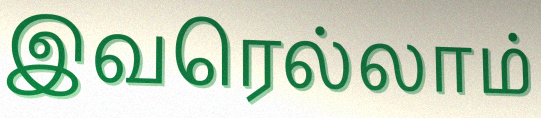
இவரெல்லாம்